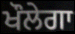
ਖੌਲੇਗਾ